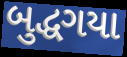
બુદ્ધગયા